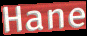
Hane